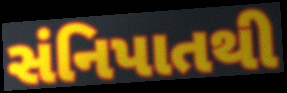
સંનિપાતથી